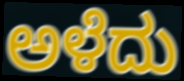
ಅಳೆದು